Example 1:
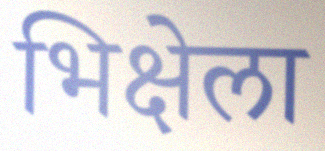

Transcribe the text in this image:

भिक्षेला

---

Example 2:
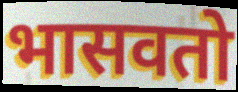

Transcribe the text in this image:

भासवतो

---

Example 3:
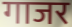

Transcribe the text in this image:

गाजर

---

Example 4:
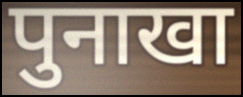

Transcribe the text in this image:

पुनाखा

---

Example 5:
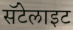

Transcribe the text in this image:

सॅटेलाइट